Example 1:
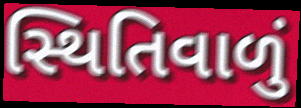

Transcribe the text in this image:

સ્થિતિવાળું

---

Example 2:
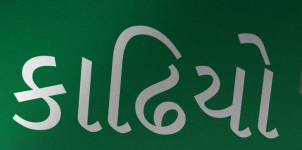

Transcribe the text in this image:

કાઢિયો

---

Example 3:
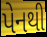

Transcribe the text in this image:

પેનથી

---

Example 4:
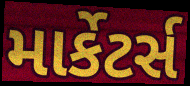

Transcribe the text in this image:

માર્કેટર્સ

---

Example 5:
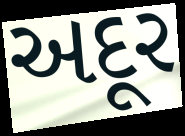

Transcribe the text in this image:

અદૂર